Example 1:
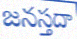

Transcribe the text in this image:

జనస్తదా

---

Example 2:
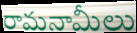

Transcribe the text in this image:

రామనామీలు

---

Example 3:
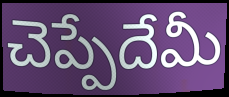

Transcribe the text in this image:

చెప్పేదేమీ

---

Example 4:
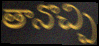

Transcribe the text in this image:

తానొచ్చి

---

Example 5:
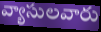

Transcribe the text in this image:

వ్యాసులవారు